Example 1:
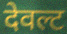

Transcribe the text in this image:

देवल्ट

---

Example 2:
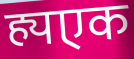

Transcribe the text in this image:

ह्यएक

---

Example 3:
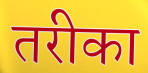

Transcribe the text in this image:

तरीका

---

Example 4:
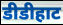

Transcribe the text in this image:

डीडीहाट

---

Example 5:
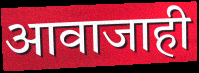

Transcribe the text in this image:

आवाजाही